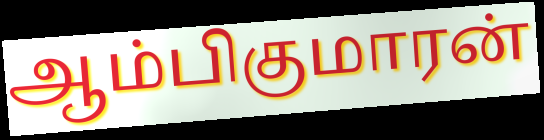
ஆம்பிகுமாரன்